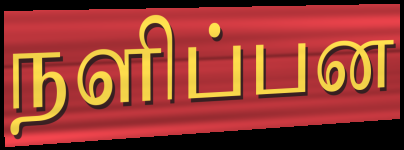
நளிப்பன